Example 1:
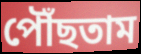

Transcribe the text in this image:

পৌঁছতাম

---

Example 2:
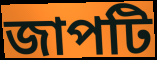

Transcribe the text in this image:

জাপটি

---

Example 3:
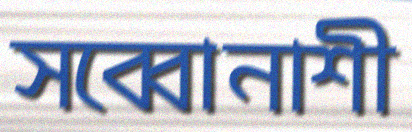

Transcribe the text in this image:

সব্বোনাশী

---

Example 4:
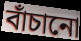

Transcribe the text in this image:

বাঁচানো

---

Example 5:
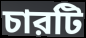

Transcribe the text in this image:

চারটি